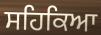
ਸਹਿਕਿਆ